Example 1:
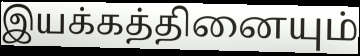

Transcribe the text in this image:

இயக்கத்தினையும்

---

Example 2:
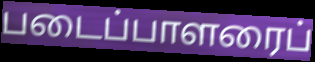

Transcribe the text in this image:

படைப்பாளரைப்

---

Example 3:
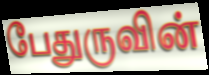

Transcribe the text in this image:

பேதுருவின்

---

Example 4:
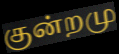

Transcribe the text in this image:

குன்றமு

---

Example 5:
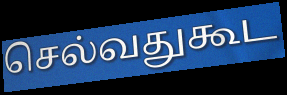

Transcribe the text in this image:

செல்வதுகூட